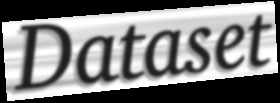
Dataset